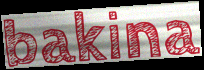
bakina